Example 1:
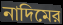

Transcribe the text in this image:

নাদিমের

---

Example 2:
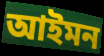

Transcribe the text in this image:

আইমন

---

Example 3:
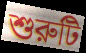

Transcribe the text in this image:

শুরুটি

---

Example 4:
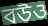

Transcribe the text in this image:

বউও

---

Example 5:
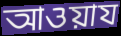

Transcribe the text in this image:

আওয়ায